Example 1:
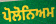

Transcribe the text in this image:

ਪੋਲੋਨਿਅਮ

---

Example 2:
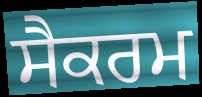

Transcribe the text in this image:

ਸੈਕਰਮ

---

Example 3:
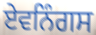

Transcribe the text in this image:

ਏਵਨਿੰਗਸ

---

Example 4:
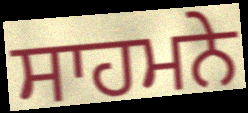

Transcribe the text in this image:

ਸਾਹਮਨੇ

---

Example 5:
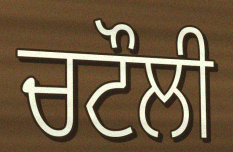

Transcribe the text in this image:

ਚਟੌਲੀ